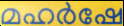
മഹർഷേ